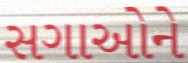
સગાઓને